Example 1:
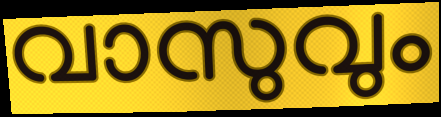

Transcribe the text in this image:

വാസുവും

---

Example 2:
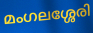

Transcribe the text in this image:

മംഗലശ്ശേരി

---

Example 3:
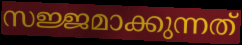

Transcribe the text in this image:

സജ്ജമാക്കുന്നത്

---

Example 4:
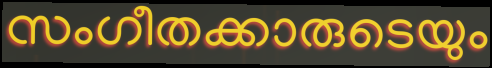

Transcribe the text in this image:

സംഗീതക്കാരുടെയും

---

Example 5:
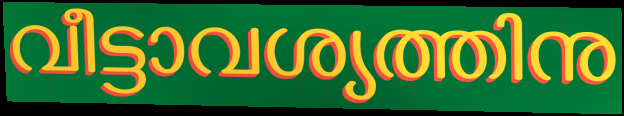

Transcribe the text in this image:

വീട്ടാവശ്യത്തിനു